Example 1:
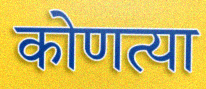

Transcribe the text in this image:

कोणत्या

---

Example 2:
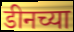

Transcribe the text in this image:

डीनच्या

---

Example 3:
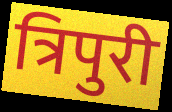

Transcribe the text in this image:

त्रिपुरी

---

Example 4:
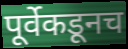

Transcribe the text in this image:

पूर्वेकडूनच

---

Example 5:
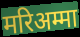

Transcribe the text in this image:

मरिअम्मा